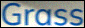
Grass